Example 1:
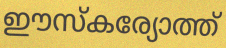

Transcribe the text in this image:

ഈസ്കര്യോത്ത്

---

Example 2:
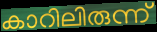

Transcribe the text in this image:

കാറിലിരുന്ന്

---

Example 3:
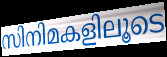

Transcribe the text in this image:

സിനിമകളിലൂടെ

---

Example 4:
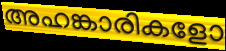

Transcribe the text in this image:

അഹങ്കാരികളോ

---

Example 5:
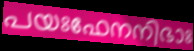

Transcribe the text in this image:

പയഃഫേനനിഭാഃ